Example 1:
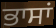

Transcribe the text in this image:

ਭਾਸਾਂ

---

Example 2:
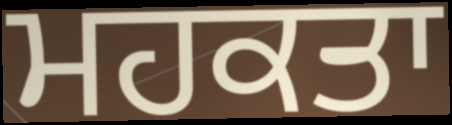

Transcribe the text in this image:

ਮਹਕਤਾ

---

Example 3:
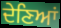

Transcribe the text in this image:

ਦੇਣਿਆਂ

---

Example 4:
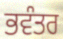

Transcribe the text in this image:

ਭਵੰਤਰ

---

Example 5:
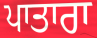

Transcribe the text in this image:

ਪਾਤਾਰਾ